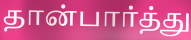
தான்பார்த்து